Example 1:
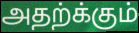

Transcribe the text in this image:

அதற்க்கும்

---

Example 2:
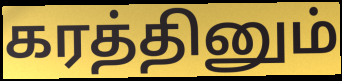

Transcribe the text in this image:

கரத்தினும்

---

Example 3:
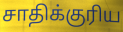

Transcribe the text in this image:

சாதிக்குரிய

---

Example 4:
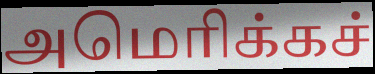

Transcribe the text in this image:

அமெரிக்கச்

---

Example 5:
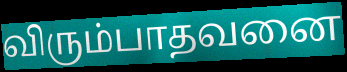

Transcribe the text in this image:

விரும்பாதவனை